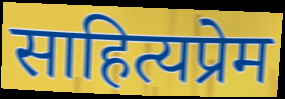
साहित्यप्रेम